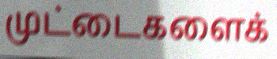
முட்டைகளைக்